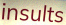
insults